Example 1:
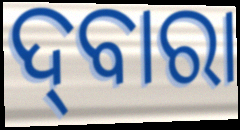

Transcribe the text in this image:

ଦ୍‌ବାରା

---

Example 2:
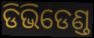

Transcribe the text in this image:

ଡିଭିଡେଣ୍ଡ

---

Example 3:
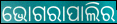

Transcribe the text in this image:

ଭୋଗରାପାଲିର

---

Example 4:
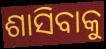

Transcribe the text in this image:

ଶାସିବାକୁ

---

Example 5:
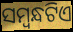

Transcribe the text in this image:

ସମ୍ୱନ୍ଧଟିଏ